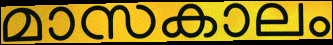
മാസകാലം